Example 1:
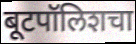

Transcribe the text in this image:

बूटपॉलिशचा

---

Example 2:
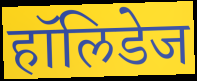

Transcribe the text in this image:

हॉलिडेज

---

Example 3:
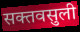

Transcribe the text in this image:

सक्तवसुली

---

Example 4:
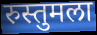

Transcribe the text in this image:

रुस्तुमला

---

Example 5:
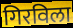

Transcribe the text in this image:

गिरविला